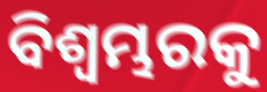
ବିଶ୍ୱମ୍ଭରକୁ